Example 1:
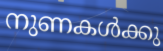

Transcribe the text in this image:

നുണകൾക്കു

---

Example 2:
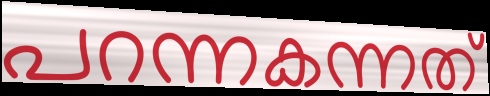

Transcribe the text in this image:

പറന്നകന്നത്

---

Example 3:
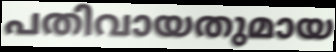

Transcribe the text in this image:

പതിവായതുമായ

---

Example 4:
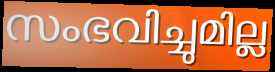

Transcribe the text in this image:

സംഭവിച്ചുമില്ല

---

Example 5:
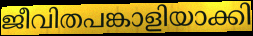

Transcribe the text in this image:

ജീവിതപങ്കാളിയാക്കി